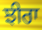
ਝੀਰਾ